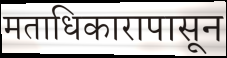
मताधिकारापासून